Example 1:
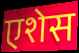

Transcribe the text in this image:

एशेस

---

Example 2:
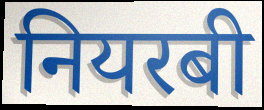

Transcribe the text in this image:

नियरबी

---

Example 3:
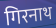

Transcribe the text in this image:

गिरनाथ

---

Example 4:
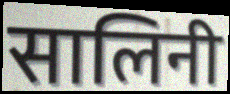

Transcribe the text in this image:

सालिनी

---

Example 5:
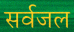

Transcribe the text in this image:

सर्वजल